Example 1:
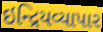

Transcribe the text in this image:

ઇન્દ્રિયવ્યાપાર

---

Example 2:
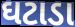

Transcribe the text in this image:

ઘટાડા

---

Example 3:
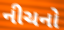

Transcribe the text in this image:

નીચનો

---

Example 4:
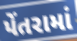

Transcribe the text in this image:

પેંતરામાં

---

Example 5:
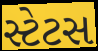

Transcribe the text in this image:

સ્ટેટસ